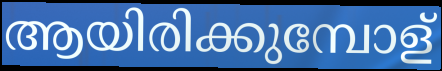
ആയിരിക്കുമ്പോള്